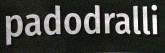
padodralli